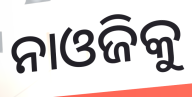
ନାଓଜିକୁ